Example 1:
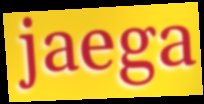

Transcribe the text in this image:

jaega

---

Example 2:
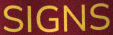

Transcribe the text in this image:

SIGNS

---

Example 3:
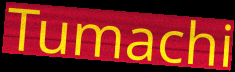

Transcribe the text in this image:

Tumachi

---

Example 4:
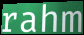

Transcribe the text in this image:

rahm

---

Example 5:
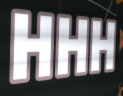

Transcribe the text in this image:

HHH